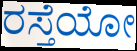
ರಸ್ತೆಯೋ